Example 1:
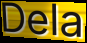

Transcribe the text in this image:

Dela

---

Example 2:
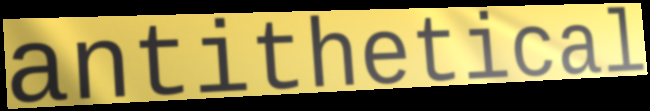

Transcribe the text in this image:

antithetical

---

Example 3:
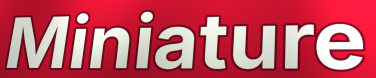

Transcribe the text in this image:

Miniature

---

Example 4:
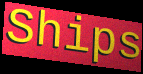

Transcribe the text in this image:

Ships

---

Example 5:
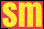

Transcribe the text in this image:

sm